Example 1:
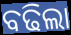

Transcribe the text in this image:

ବଢିଲା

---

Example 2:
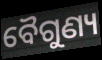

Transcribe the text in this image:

ବୈଗୁଣ୍ୟ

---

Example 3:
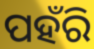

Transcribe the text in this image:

ପହଁରି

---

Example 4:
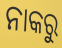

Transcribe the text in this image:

ନାକରୁ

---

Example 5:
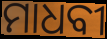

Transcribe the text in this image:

ମାଧବୀ